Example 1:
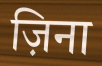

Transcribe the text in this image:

ज़िना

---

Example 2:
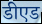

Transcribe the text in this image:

डीएड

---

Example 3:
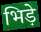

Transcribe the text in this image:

भिड़े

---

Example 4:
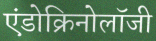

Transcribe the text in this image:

एंडोक्रिनोलॉजी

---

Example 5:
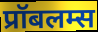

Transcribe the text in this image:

प्रॉबलम्स